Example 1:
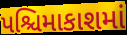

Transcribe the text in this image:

પશ્ચિમાકાશમાં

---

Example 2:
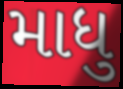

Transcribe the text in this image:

માધુ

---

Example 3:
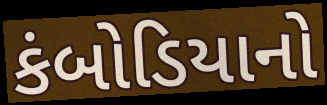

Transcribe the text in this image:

કંબોડિયાનો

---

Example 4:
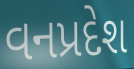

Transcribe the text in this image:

વનપ્રદેશ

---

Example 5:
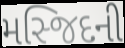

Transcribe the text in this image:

મસ્જિદની